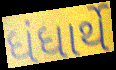
ધંધાર્થે